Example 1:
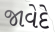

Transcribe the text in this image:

જાવેદે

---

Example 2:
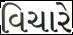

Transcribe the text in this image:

વિચારે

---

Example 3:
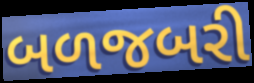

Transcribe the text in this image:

બળજબરી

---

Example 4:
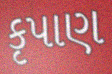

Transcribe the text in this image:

કૃપાણ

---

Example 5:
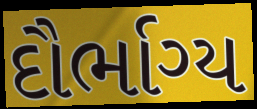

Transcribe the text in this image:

દૌર્ભાગ્ય